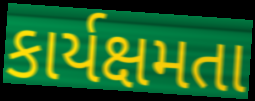
કાર્યક્ષમતા